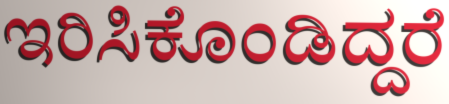
ಇರಿಸಿಕೊಂಡಿದ್ದರೆ